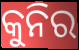
କୁନିର